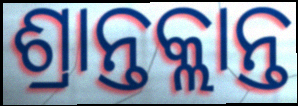
ଶ୍ରାନ୍ତକ୍ଲାନ୍ତ